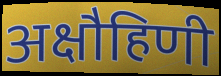
अक्षौहिणी